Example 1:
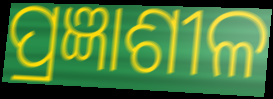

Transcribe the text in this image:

ପ୍ରଜ୍ଞାଶୀଳ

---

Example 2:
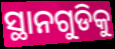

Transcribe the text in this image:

ସ୍ଥାନଗୁଡିକୁ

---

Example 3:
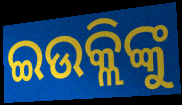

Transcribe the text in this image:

ଇଉକ୍ଲିଙ୍କୁ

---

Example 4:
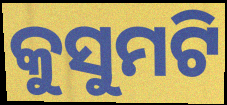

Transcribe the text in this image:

କୁସୁମଟି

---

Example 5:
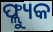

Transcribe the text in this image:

ଫ୍ଲ୍ୟୁକ